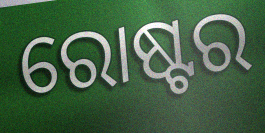
ରୋଷ୍ଟର